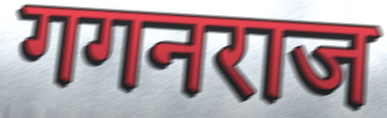
गगनराज